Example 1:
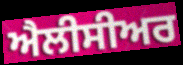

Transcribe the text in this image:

ਐਲੀਸੀਅਰ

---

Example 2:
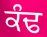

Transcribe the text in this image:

ਕੰਢ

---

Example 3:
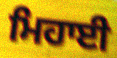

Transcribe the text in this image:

ਮਿਹਾਈ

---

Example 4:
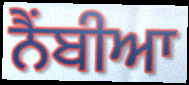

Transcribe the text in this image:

ਨੈਂਬੀਆ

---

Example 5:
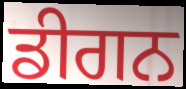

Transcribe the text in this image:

ਡੀਗਨ